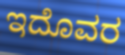
ಇದೊವರ